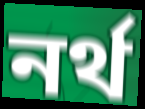
নর্থ